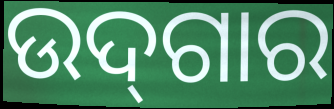
ଉଦ୍‌ଗାର